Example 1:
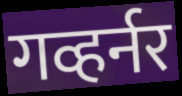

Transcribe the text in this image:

गव्हर्नर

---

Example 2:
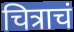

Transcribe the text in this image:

चित्राचं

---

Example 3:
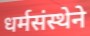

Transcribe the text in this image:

धर्मसंस्थेने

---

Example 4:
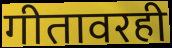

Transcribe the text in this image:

गीतावरही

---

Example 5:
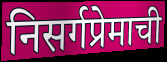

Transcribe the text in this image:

निसर्गप्रेमाची